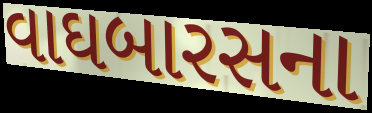
વાઘબારસના